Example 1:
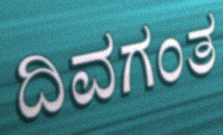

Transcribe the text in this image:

ದಿವಗಂತ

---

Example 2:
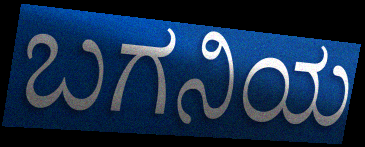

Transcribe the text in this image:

ಬಗನಿಯ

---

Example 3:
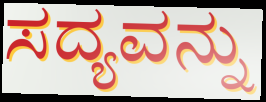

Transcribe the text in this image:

ಸದ್ಯವನ್ನು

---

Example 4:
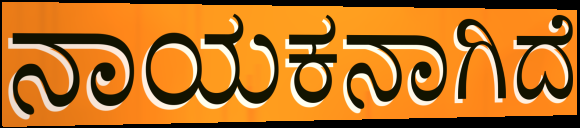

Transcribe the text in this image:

ನಾಯಕನಾಗಿದೆ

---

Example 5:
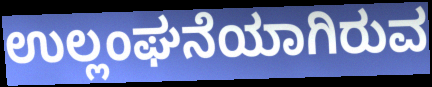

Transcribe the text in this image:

ಉಲ್ಲಂಘನೆಯಾಗಿರುವ